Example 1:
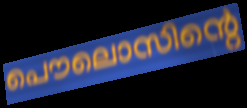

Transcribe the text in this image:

പൌലൊസിന്റെ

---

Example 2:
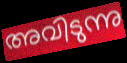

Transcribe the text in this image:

അവിടുന്നു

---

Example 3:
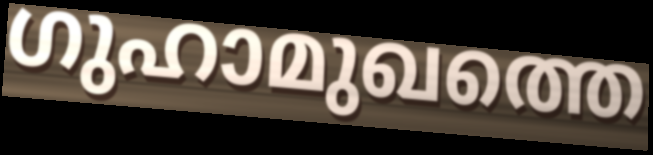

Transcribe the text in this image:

ഗുഹാമുഖത്തെ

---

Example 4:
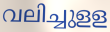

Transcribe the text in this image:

വലിച്ചുളള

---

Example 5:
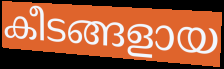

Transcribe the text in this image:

കീടങ്ങളായ